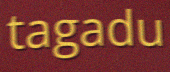
tagadu